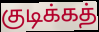
குடிக்கத்